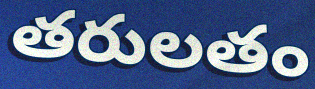
తరులతం